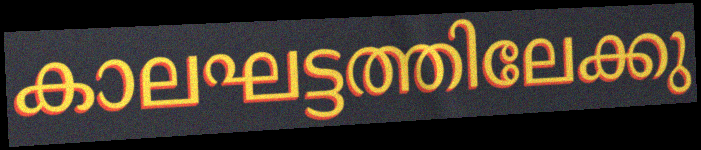
കാലഘട്ടത്തിലേക്കു